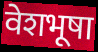
वेशभूषा